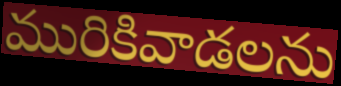
మురికివాడలను